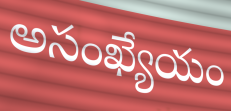
అసంఖ్యేయం